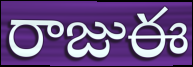
రాజుఈ